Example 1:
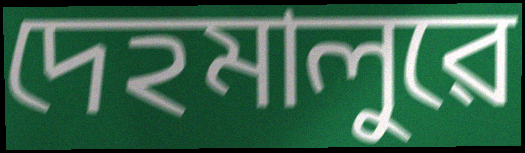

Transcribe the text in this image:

দেহমালুৱে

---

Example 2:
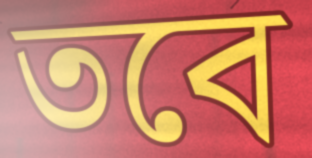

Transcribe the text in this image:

তবে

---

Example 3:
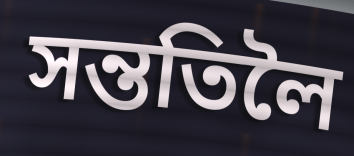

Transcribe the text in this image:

সন্ততিলৈ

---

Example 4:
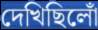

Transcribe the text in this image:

দেখিছিলোঁ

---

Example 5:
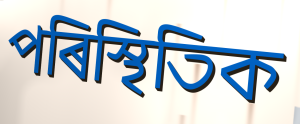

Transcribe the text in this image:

পৰিস্থিতিক